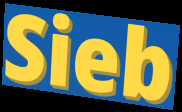
Sieb